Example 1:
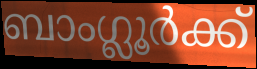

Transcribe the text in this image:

ബാംഗ്ലൂർക്ക്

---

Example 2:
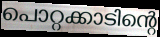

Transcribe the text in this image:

പൊറ്റക്കാടിന്റെ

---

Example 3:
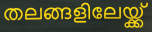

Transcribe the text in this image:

തലങ്ങളിലേയ്ക്ക്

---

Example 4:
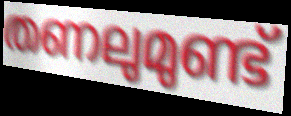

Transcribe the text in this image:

തണലുമുണ്ട്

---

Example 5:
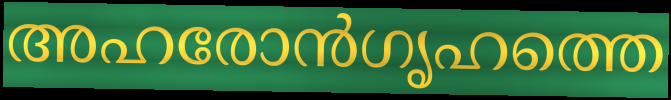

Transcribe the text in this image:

അഹരോൻഗൃഹത്തെ